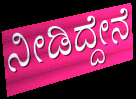
ನೀಡಿದ್ದೇನೆ